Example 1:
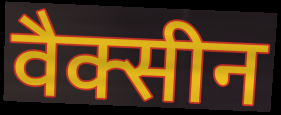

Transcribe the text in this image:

वैक्सीन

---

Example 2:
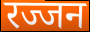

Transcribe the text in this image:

रज्जन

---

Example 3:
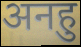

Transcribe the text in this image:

अनहु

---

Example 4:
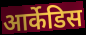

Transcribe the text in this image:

आर्केडिस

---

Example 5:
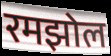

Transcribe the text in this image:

रमझोल